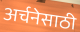
अर्चनेसाठी